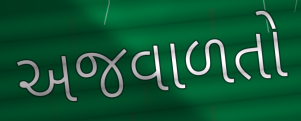
અજવાળતો